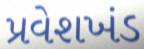
પ્રવેશખંડ